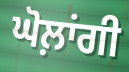
ਘੋਲ਼ਾਂਗੀ